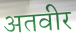
अतवीर